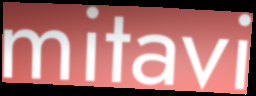
mitavi